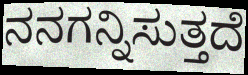
ನನಗನ್ನಿಸುತ್ತದೆ